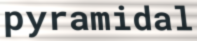
pyramidal